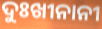
ଦୁଃଖୀନାନୀ